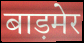
बाड़मेर